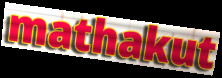
mathakut